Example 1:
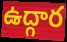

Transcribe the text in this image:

ఉద్గార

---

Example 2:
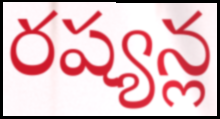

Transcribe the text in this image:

రష్యన్ల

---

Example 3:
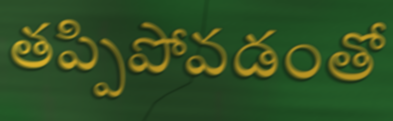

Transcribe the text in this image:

తప్పిపోవడంతో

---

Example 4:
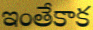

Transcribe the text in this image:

ఇంతేకాక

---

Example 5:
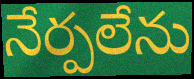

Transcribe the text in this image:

నేర్పలేను